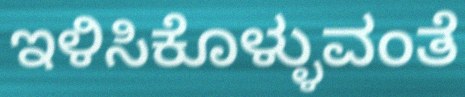
ಇಳಿಸಿಕೊಳ್ಳುವಂತೆ